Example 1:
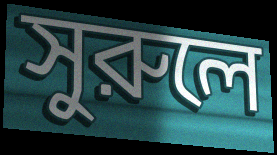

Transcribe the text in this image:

সুরুলে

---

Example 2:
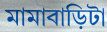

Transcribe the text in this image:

মামাবাড়িটা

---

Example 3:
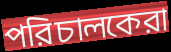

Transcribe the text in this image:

পরিচালকেরা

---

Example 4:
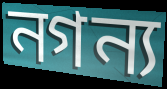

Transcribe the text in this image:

নগন্য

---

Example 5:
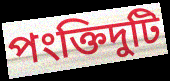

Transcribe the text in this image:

পংক্তিদুটি